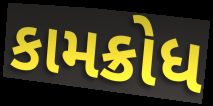
કામક્રોધ